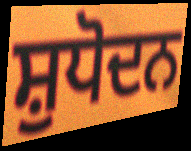
ਸ਼ੁਧੋਦਨ